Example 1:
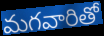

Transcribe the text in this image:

మగవారితో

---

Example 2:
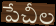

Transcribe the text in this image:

పేచీల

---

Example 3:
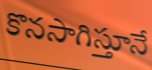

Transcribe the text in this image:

కొనసాగిస్తూనే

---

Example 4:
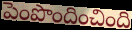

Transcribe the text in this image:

పెంపొందించింది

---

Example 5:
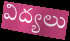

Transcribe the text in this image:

విద్యలు